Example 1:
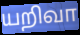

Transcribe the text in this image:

யறிவா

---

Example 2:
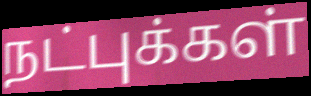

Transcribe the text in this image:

நட்புக்கள்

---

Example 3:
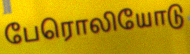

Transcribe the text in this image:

பேரொலியோடு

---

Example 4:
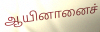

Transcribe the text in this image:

ஆயினானைச்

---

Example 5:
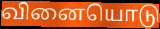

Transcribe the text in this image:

வினையொடு